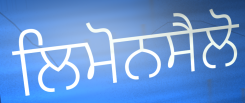
ਲਿਮੋਨਸੈਲੋ